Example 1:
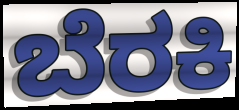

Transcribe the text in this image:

ಬೆರಕಿ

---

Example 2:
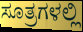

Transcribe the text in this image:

ಸೂತ್ರಗಳಲ್ಲಿ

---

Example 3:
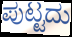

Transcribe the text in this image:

ಪುಟ್ಟದು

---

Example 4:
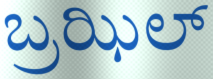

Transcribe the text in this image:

ಬ್ರಝಿಲ್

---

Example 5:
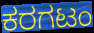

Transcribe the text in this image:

ಕರಗಟಂ